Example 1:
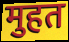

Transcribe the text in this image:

मुहत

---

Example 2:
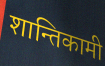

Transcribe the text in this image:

शान्तिकामी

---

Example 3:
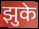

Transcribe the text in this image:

झुके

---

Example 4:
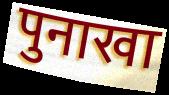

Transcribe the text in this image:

पुनाखा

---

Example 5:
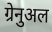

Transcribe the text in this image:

ग्रेनुअल